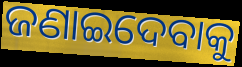
ଜଣାଇଦେବାକୁ